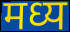
मध्‍य